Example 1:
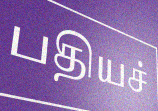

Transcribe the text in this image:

பதியச்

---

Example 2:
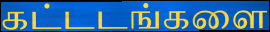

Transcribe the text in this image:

கட்டடங்களை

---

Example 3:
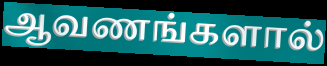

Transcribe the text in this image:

ஆவணங்களால்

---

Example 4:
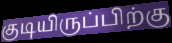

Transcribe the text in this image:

குடியிருப்பிற்கு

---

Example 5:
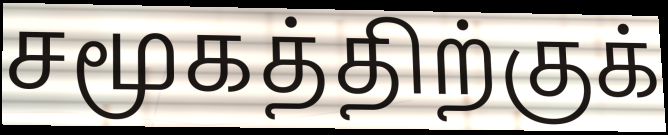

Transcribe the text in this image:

சமூகத்திற்குக்